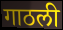
गाठली